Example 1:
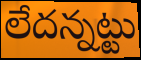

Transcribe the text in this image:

లేదన్నట్టు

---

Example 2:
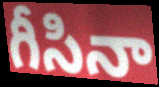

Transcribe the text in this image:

గీసినా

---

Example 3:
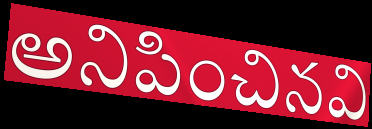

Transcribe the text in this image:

అనిపించినవి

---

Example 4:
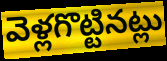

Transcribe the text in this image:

వెళ్లగొట్టినట్లు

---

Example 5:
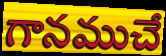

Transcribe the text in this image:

గానముచే